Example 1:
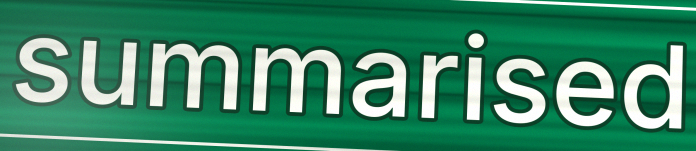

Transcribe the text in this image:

summarised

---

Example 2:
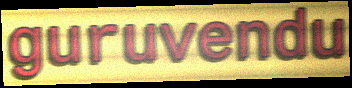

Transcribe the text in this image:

guruvendu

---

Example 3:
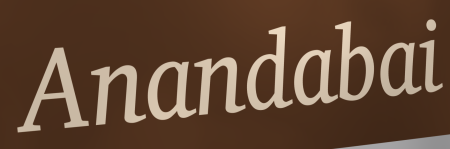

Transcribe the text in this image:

Anandabai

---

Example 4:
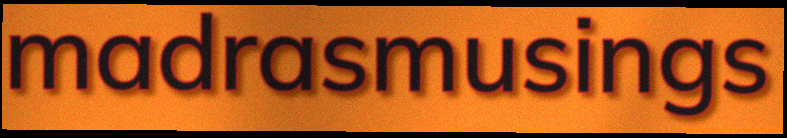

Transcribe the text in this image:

madrasmusings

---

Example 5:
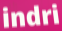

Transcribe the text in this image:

indri